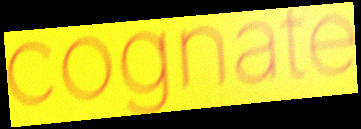
cognate